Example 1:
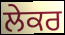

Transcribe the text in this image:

ਲੇਕਰ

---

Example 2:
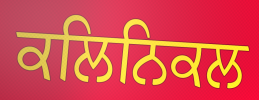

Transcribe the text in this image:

ਕਲਿਨਿਕਲ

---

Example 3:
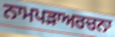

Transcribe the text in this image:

ਨਾਮਪੜਾਅਰਚਨਾ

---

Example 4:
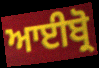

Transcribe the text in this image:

ਆਈਬ੍ਰੋ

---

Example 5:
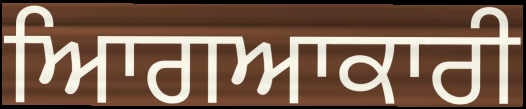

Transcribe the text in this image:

ਆਿਗਆਕਾਰੀ